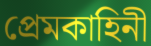
প্রেমকাহিনী